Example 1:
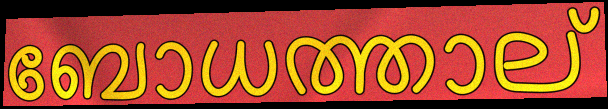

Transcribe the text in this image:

ബോധത്താല്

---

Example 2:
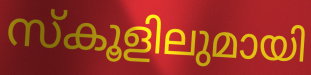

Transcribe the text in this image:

സ്കൂളിലുമായി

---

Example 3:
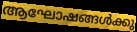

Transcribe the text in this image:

ആഘോഷങ്ങൾക്കു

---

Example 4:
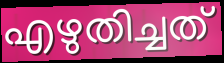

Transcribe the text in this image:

എഴുതിച്ചത്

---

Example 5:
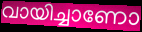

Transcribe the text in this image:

വായിച്ചാണോ